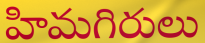
హిమగిరులు